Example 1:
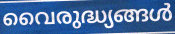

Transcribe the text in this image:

വൈരുദ്ധ്യങ്ങൾ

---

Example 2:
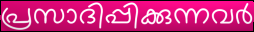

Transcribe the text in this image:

പ്രസാദിപ്പിക്കുന്നവർ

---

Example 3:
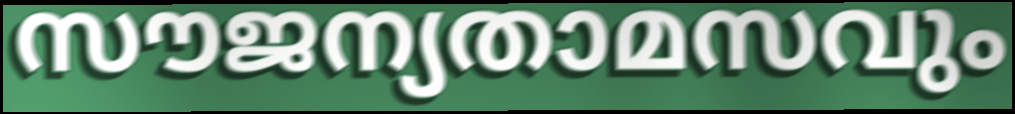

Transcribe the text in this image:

സൗജന്യതാമസവും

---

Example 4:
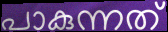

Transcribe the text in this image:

പാകുന്നത്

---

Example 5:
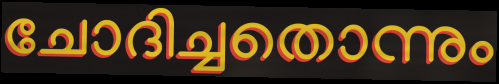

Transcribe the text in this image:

ചോദിച്ചതൊന്നും